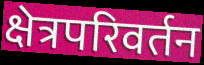
क्षेत्रपरिवर्तन